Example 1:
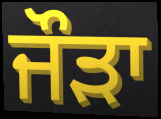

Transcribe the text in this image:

ਜੌੜਾ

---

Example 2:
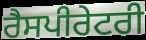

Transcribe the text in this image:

ਰੈਸਪੀਰੇਟਰੀ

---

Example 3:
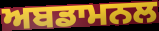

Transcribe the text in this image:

ਅਬਡਾਮਨਲ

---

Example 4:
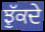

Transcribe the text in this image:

ਝੁੱਕਦੇ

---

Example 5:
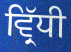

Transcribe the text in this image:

ਵ੍ਰਿੱਧੀ